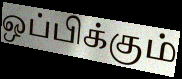
ஒப்பிக்கும்